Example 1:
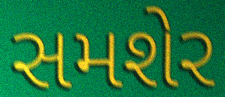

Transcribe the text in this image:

સમશેર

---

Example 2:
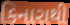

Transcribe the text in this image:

કિનારાથી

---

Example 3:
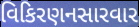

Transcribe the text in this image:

વિકિરણનસારવાર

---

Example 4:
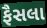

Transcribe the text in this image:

ફૈસલા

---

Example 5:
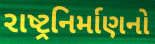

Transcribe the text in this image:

રાષ્ટ્રનિર્માણનો